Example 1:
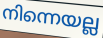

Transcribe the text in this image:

നിന്നെയല്ല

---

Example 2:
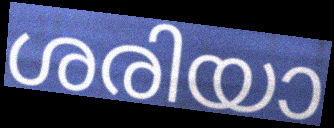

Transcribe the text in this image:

ശരിയാ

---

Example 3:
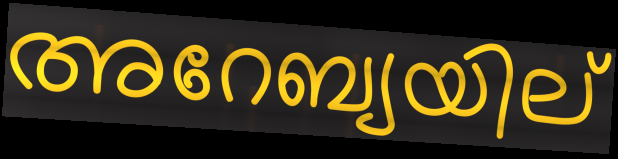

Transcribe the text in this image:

അറേബ്യയില്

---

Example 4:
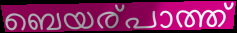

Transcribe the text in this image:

ബെയര്പാത്ത്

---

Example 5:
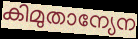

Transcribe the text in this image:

കിമുതാന്യേന